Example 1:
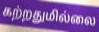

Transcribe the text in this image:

கற்றதுமில்லை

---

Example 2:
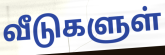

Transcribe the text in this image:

வீடுகளுள்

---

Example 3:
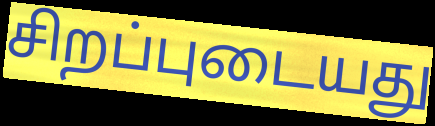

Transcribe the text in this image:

சிறப்புடையது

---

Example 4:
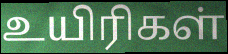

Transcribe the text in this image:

உயிரிகள்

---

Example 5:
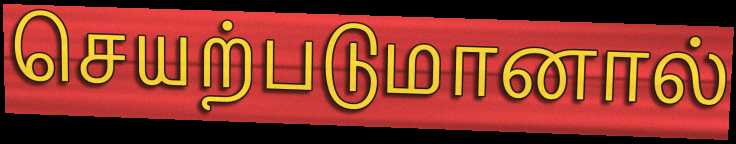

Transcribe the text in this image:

செயற்படுமானால்